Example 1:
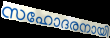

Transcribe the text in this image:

സഹോദരനായി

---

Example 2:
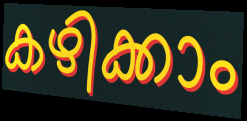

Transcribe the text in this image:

കഴിക്കാം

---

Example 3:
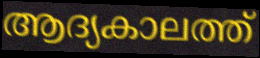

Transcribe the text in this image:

ആദ്യകാലത്ത്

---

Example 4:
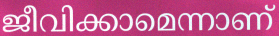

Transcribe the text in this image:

ജീവിക്കാമെന്നാണ്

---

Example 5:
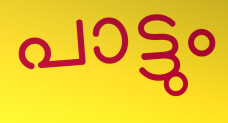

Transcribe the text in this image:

പാട്ടും